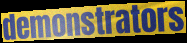
demonstrators